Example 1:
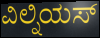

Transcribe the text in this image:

ವಿಲ್ನಿಯಸ್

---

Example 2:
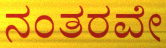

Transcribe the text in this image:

ನಂತರವೇ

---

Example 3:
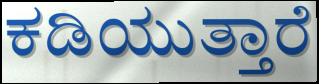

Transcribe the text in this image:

ಕಡಿಯುತ್ತಾರೆ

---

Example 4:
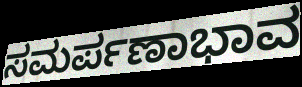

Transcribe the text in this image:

ಸಮರ್ಪಣಾಭಾವ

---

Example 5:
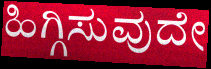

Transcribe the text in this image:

ಹಿಗ್ಗಿಸುವುದೇ